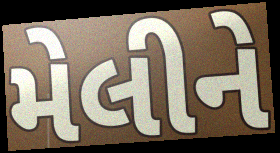
મેલીને